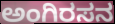
ಅಂಗಿರಸನ